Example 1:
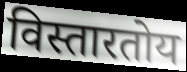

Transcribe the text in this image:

विस्तारतोय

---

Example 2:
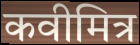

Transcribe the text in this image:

कवीमित्र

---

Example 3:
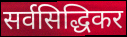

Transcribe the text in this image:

सर्वसिद्धिकर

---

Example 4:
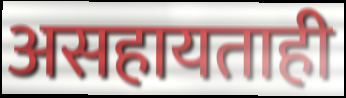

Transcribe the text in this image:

असहायताही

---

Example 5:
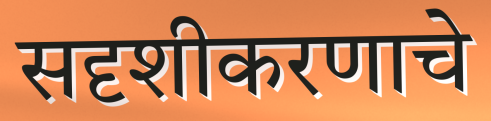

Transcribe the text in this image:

सदृशीकरणाचे